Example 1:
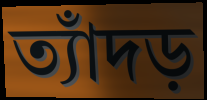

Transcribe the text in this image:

ত্যাঁদড়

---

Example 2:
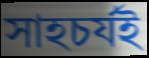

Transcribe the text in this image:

সাহচর্যই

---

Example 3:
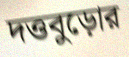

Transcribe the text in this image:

দত্তবুড়োর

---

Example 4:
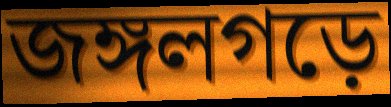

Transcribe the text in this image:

জঙ্গলগড়ে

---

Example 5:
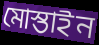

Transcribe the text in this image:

মোস্তাইন